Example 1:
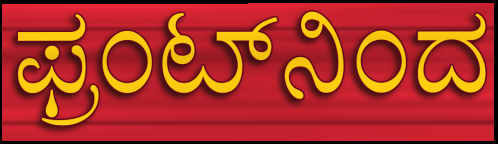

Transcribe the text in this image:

ಫ್ರಂಟ್‌ನಿಂದ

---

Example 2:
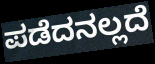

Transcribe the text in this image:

ಪಡೆದನಲ್ಲದೆ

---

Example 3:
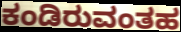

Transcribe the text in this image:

ಕಂಡಿರುವಂತಹ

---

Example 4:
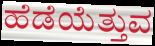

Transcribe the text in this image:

ಹೆಡೆಯೆತ್ತುವ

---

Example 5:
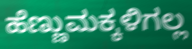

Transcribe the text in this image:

ಹೆಣ್ಣುಮಕ್ಕಳಿಗಲ್ಲ